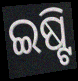
ଇଷ୍ଟି